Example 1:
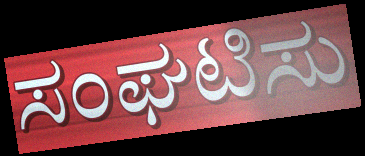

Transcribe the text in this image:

ಸಂಘಟಿಸು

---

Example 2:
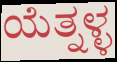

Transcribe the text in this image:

ಯೆತ್ನಳ್ಳ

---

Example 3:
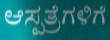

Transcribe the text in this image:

ಆಸ್ಪತ್ರೆಗಳಿಗೆ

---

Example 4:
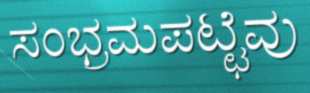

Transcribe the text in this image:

ಸಂಭ್ರಮಪಟ್ಟೆವು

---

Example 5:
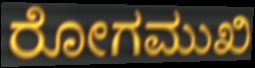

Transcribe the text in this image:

ರೋಗಮುಖಿ